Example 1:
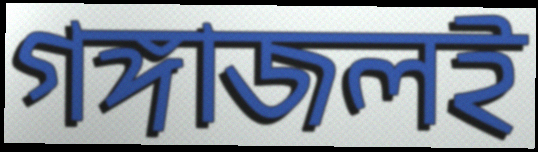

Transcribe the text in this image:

গঙ্গাজলই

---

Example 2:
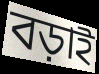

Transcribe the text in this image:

বড়াই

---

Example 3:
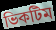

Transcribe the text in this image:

ভিকটিম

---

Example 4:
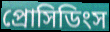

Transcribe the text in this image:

প্রোসিডিংস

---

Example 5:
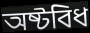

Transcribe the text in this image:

অষ্টবিধ